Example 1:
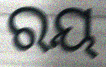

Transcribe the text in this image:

ରୟ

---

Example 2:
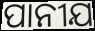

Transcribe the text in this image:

ପାନୀଯ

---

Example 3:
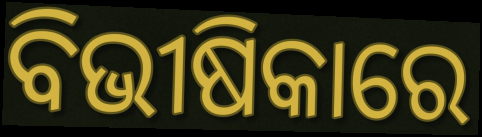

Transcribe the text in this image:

ବିଭୀଷିକାରେ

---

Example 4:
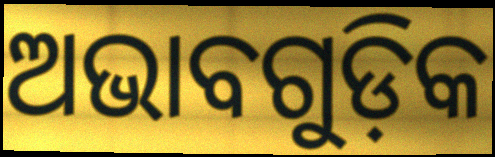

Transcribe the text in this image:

ଅଭାବଗୁଡ଼ିକ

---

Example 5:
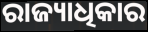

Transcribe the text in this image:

ରାଜ୍ୟାଧିକାର